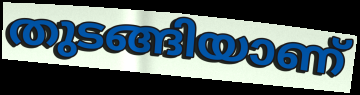
തുടങ്ങിയാണ്